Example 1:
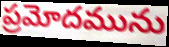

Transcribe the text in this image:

ప్రమోదమును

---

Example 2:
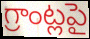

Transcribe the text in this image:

గ్రాంట్లపై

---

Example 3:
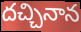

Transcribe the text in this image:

దచ్చినాన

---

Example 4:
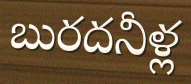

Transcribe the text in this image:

బురదనీళ్ల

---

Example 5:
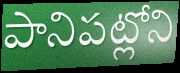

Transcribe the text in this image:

పానిపట్లోని